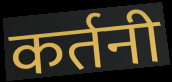
कर्तनी